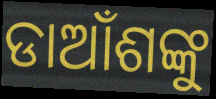
ଡାଆଁଶଙ୍କୁ